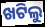
ଖଟିଲୁ